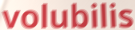
volubilis